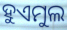
ହୁଏମୁଲ